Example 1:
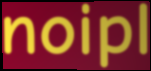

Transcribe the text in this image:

noipl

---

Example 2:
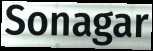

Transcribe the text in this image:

Sonagar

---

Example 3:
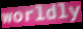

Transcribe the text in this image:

worldly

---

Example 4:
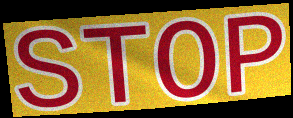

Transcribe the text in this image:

STOP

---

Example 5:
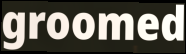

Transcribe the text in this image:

groomed